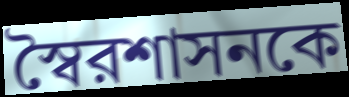
স্বৈরশাসনকে